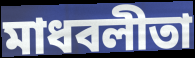
মাধবলীতা